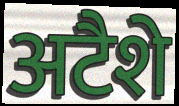
अटैशे